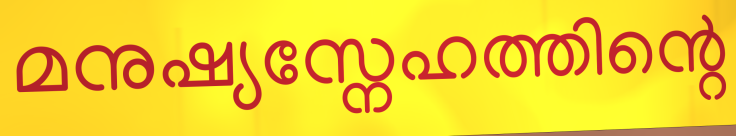
മനുഷ്യസ്നേഹത്തിന്റെ